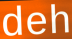
deh